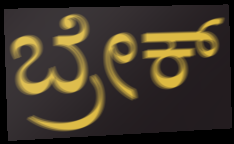
ಬ್ರೇಕ್